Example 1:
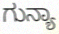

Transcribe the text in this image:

ಗುನ್ಯಾ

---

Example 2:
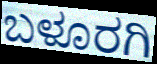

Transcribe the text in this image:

ಬಳೂರಗಿ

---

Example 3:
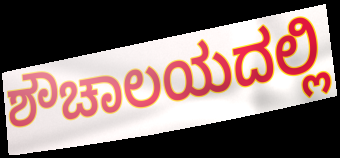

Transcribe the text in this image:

ಶೌಚಾಲಯದಲ್ಲಿ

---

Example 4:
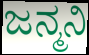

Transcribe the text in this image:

ಜನ್ಮನಿ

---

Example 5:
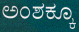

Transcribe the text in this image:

ಅಂಶಕ್ಕೂ